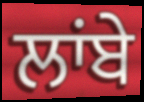
ਲਾਂਬੇ